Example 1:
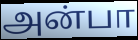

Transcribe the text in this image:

அன்பா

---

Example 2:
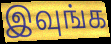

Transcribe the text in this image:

இவுங்க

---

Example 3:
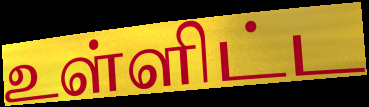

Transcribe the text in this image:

உள்ளிட்ட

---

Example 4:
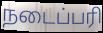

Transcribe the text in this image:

நடைப்பரி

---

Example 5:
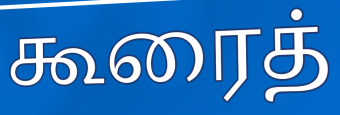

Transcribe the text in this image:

கூரைத்